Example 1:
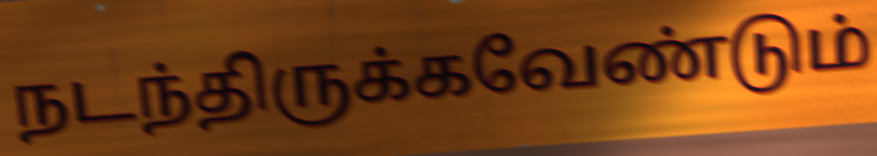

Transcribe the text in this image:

நடந்திருக்கவேண்டும்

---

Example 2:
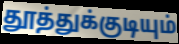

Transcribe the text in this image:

தூத்துக்குடியும்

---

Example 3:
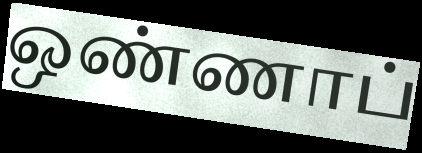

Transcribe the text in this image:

ஒண்ணாப்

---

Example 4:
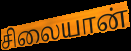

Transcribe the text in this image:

சிலையான்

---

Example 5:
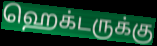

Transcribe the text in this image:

ஹெக்டருக்கு